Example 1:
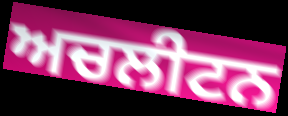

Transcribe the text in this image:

ਅਚਲੀਟਨ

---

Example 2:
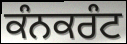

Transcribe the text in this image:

ਕੰਨਕਰੰਟ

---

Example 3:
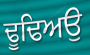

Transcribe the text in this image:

ਢੂਢਿਅਉ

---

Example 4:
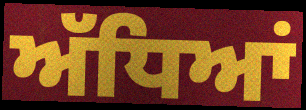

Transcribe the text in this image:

ਅੱਧਿਆਂ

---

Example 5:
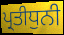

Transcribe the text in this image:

ਪ੍ਰਤੀਧੁਨੀ